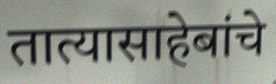
तात्यासाहेबांचे